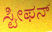
ಸ್ಟೀಫನ್